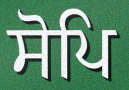
ਸੋਪਿ